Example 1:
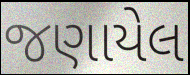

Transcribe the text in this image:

જણાયેલ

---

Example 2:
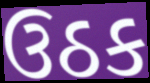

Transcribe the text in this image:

ઉઠક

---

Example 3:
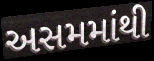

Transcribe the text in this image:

અસમમાંથી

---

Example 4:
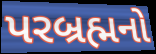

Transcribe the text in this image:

પરબ્રહ્મનો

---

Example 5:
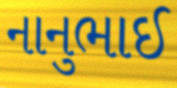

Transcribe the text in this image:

નાનુભાઈ